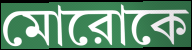
মোরোকে